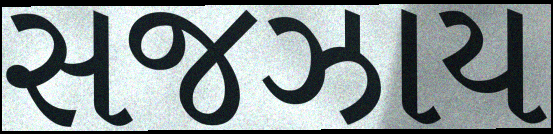
સજઝાય